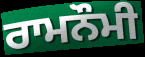
ਰਾਮਨੌਮੀ